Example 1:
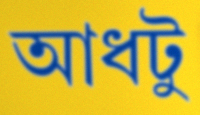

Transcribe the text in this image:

আধটু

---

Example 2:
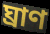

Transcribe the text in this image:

ঘ্রাণ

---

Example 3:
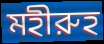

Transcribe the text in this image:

মহীরুহ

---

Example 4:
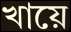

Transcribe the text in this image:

খায়ে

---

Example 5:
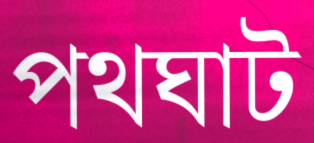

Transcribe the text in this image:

পথঘাট